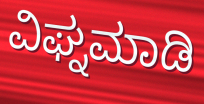
ವಿಘ್ನಮಾಡಿ